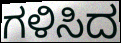
ಗಳಿಸಿದ